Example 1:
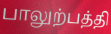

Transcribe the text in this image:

பாலுற்பத்தி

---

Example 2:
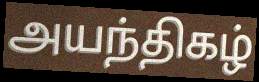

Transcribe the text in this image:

அயந்திகழ்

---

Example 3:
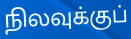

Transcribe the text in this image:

நிலவுக்குப்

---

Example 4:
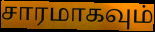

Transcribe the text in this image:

சாரமாகவும்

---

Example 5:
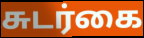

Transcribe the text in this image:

சுடர்கை